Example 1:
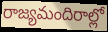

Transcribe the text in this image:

రాజ్యమందిరాల్లో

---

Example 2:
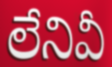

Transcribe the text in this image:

లేనివీ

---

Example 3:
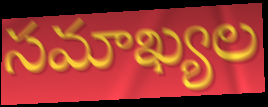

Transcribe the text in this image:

సమాఖ్యల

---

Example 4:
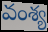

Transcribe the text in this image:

వంశ్య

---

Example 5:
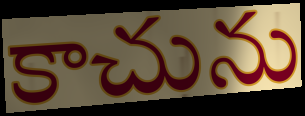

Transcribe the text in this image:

కాచును